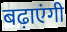
बढ़ाएंगी